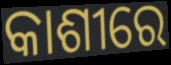
କାଶୀରେ